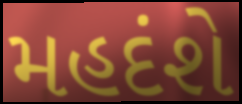
મહદંશે